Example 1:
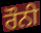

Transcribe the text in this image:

ਰੌਨੀ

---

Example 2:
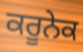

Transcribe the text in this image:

ਕਰੂਨੇਕ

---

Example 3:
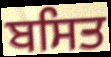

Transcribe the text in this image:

ਬਸਿਤ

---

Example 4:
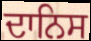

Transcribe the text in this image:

ਦਾਨਿਸ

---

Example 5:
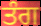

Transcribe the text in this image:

ਤੰਗ